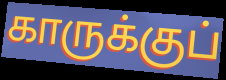
காருக்குப்